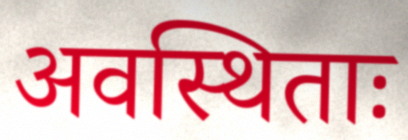
अवस्थिताः